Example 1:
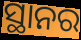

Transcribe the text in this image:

ସ୍ଥାନର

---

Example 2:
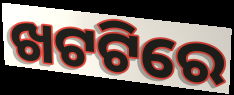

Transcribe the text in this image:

ଖଟଟିରେ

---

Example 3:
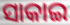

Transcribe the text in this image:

ସାକାଇ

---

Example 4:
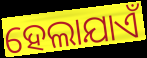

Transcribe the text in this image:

ହେଲାଯାଏଁ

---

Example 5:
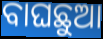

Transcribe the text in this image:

ବାଘଛୁଆ